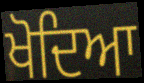
ਖੋਦਿਆ